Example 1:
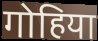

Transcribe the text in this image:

गोहिया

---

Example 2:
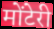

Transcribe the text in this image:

मोंटेरी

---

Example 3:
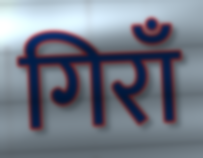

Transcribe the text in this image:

गिराँ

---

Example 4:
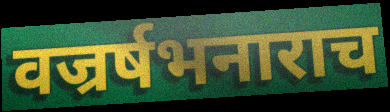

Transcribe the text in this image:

वज्रर्षभनाराच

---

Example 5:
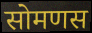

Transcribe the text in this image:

सोमणस